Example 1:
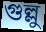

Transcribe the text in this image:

গুল্লু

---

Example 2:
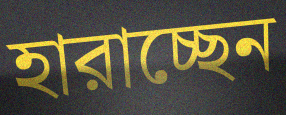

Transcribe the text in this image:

হারাচ্ছেন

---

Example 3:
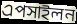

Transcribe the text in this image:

এপসাইলন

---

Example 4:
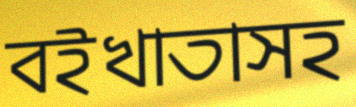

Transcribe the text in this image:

বইখাতাসহ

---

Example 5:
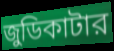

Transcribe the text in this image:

জুডিকাটার